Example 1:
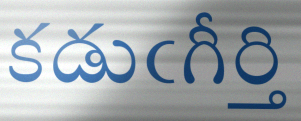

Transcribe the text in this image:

కడుఁగీర్తి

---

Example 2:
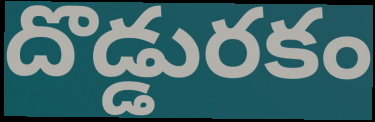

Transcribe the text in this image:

దొడ్డురకం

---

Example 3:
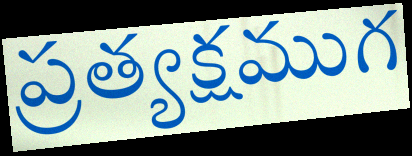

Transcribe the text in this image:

ప్రత్యక్షముగ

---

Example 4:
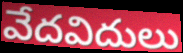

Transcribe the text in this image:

వేదవిదులు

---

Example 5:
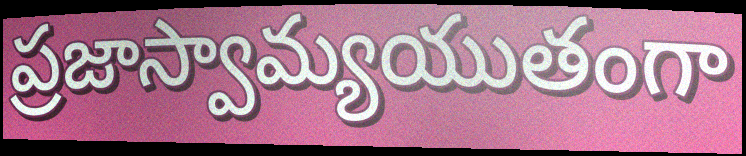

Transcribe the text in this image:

ప్రజాస్వామ్యయుతంగా